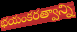
భయంకరత్వాన్ని